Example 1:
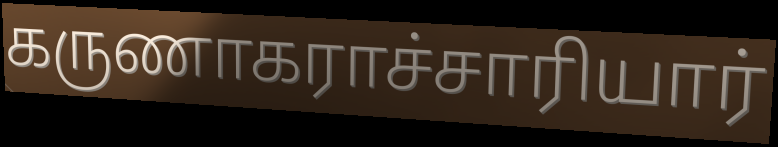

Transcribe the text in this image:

கருணாகராச்சாரியார்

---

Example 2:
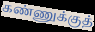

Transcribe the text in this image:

கண்ணுக்குத்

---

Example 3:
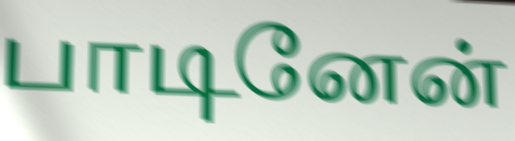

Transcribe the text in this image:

பாடினேன்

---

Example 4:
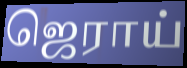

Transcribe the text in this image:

ஜெராய்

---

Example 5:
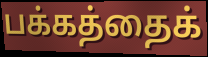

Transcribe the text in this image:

பக்கத்தைக்